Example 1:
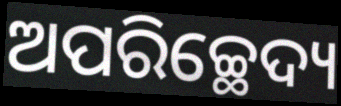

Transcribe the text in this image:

ଅପରିଚ୍ଛେଦ୍ୟ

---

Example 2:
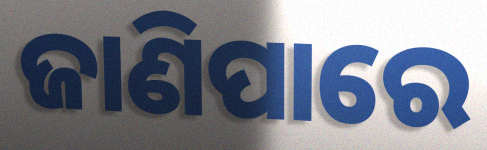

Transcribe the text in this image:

ଜାଣିପାରେ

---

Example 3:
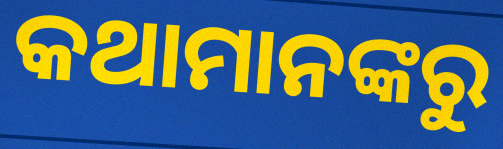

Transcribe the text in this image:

କଥାମାନଙ୍କରୁ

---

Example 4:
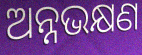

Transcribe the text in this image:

ଅନ୍ନଭକ୍ଷଣ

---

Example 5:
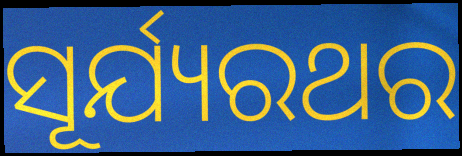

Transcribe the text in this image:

ସୂର୍ଯ୍ୟରଥର